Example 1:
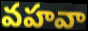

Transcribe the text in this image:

వహవా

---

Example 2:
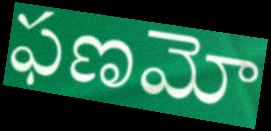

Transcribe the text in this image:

ఫణమో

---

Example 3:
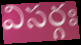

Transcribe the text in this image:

విసర్గః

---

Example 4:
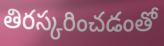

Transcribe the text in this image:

తిరస్కరించడంతో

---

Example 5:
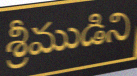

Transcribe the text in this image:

శ్రీముడిని